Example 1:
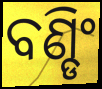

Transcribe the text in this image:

ବଣ୍ଡିଂ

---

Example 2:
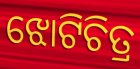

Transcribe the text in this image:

ଝୋଟିଚିତ୍ର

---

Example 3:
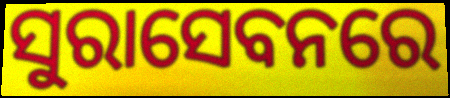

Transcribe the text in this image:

ସୁରାସେବନରେ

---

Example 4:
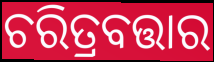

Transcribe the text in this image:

ଚରିତ୍ରବତ୍ତାର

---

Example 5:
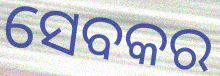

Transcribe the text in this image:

ସେବକର